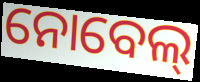
ନୋବେଲ୍